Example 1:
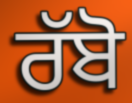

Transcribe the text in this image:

ਰੱਬੋ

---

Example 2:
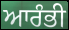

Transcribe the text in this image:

ਆਰੰਭੀ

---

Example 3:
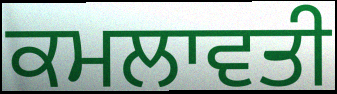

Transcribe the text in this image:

ਕਮਲਾਵਤੀ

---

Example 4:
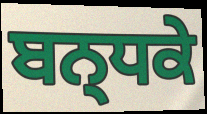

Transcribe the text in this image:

ਬਨ੍ਧਕੇ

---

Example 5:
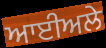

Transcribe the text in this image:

ਆਈਅਲੇ